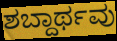
ಶಬ್ದಾರ್ಥವು